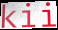
kii